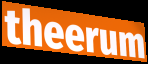
theerum